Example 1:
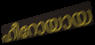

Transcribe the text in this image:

ഹീറോയായ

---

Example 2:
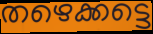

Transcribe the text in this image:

തഴെക്കട്ടെ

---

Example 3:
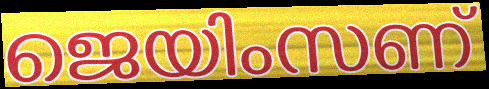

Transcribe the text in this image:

ജെയിംസണ്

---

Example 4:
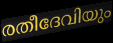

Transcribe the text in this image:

രതീദേവിയും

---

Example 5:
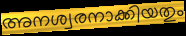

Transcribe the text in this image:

അനശ്വരനാക്കിയതും